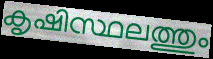
കൃഷിസ്ഥലത്തും